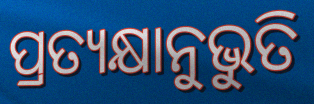
ପ୍ରତ୍ୟକ୍ଷାନୁଭୁତି